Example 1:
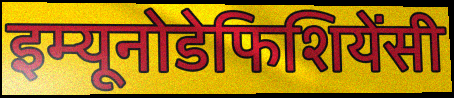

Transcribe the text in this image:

इम्यूनोडेफिशियेंसी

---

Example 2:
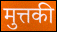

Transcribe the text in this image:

मुत्तकी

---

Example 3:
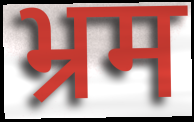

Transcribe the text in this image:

भ्रम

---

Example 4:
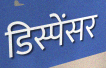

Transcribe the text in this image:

डिस्पेंसर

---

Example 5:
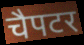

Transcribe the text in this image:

चैपटर